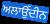
ਅਲਾਉੱਦੀਨ